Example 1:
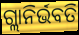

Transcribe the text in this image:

ଗ୍ଲାନିର୍ଭବତି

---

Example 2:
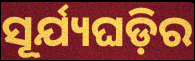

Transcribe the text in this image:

ସୂର୍ଯ୍ୟଘଡ଼ିର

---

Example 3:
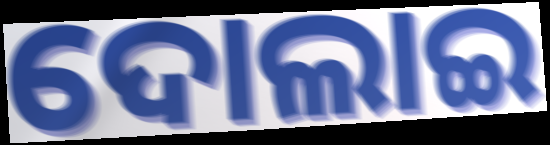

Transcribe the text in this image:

ଦୋଲାଇ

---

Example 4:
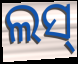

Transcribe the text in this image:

ଲସ୍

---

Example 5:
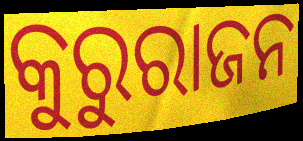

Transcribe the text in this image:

କୁରୁରାଜନ